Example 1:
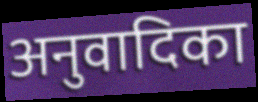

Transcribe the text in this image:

अनुवादिका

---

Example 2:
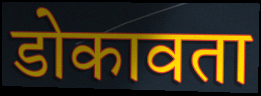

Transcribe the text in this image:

डोकावता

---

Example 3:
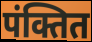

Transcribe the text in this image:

पंक्तित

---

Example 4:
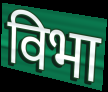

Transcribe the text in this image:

विभा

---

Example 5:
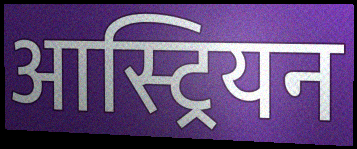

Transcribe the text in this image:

आस्ट्रियन